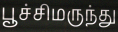
பூச்சிமருந்து